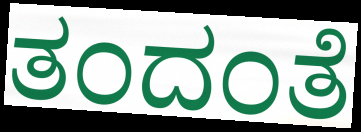
ತಂದಂತೆ